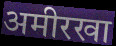
अमीरखा